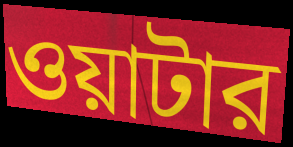
ওয়াটার